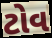
ટોવ